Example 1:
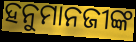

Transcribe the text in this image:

ହନୁମାନଜୀଙ୍କ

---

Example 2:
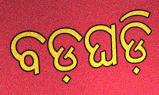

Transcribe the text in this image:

ବଡ଼ଘଡ଼ି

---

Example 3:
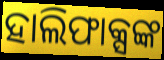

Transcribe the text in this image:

ହାଲିଫାକ୍ସଙ୍କ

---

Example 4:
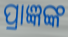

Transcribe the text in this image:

ପ୍ରାଜ୍ଞଙ୍କ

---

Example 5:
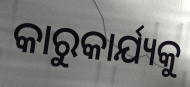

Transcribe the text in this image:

କାରୁକାର୍ଯ୍ୟକୁ